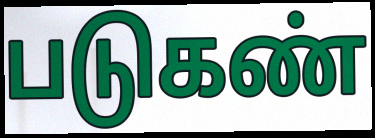
படுகண்